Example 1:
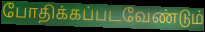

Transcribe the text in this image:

போதிக்கப்படவேண்டும்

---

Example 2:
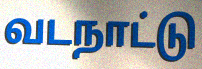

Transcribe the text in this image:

வடநாட்டு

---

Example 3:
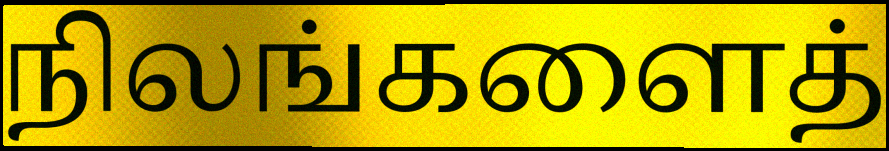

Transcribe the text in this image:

நிலங்களைத்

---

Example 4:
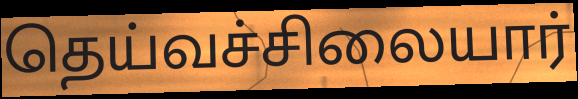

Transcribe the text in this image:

தெய்வச்சிலையார்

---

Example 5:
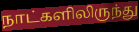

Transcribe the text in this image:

நாட்களிலிருந்து